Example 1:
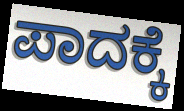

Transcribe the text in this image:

ಪಾದಕ್ಕೆ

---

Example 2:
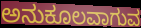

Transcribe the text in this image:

ಅನುಕೂಲವಾಗುವ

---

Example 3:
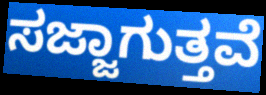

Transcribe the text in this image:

ಸಜ್ಜಾಗುತ್ತವೆ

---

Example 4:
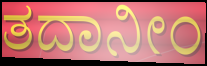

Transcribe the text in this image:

ತದಾನೀಂ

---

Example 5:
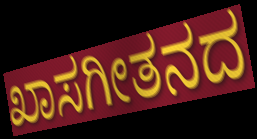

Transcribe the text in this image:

ಖಾಸಗೀತನದ